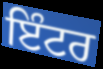
ਇੰਟਰ